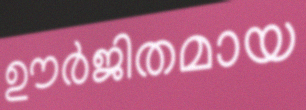
ഊർജിതമായ